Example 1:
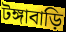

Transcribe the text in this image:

টঙ্গাবাড়ি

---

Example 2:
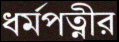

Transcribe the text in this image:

ধর্মপত্নীর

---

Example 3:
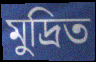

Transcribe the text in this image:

মুদ্রিত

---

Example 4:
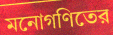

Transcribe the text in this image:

মনোগণিতের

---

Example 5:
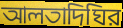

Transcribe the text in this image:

আলতাদিঘির